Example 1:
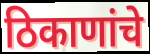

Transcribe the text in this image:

ठिकाणांचे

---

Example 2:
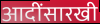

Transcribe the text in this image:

आदींसारखी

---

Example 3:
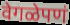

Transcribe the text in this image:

वेगळेपणं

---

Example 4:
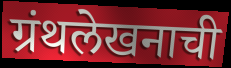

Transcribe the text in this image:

ग्रंथलेखनाची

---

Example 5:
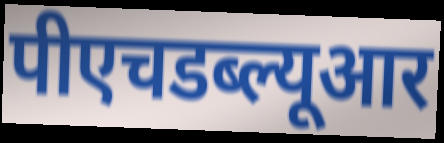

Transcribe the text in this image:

पीएचडब्ल्यूआर